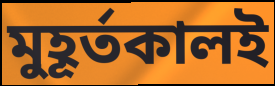
মুহূর্তকালই